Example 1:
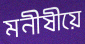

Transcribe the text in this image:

মনীষীয়ে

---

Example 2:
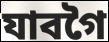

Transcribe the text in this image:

যাবগৈ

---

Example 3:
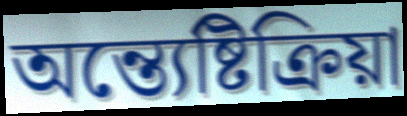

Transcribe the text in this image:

অন্ত্যেষ্টিক্ৰিয়া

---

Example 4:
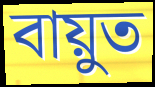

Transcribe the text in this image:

বায়ুত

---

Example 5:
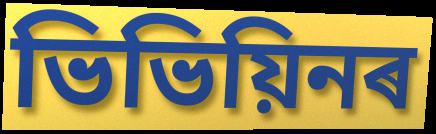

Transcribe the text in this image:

ভিভিয়িনৰ